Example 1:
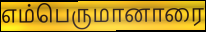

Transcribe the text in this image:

எம்பெருமானாரை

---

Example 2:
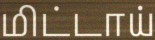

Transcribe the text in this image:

மிட்டாய்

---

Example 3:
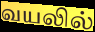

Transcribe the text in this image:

வயலில்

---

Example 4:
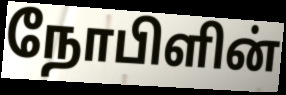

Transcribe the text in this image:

நோபிளின்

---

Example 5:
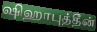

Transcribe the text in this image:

ஷிஹாபுத்தீன்